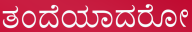
ತಂದೆಯಾದರೋ